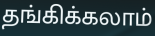
தங்கிக்கலாம்